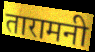
तारामनी